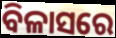
ବିଳାସରେ